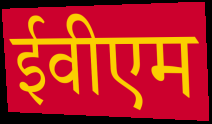
ईवीएम